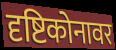
दृष्टिकोनावर